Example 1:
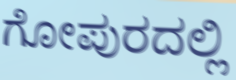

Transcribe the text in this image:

ಗೋಪುರದಲ್ಲಿ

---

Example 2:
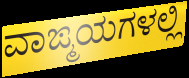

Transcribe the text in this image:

ವಾಙ್ಮಯಗಳಲ್ಲಿ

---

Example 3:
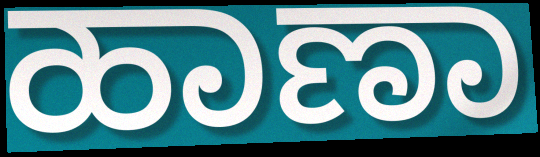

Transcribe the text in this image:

ಹಾಣಾ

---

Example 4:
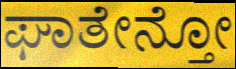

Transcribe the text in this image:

ಘಾತೇನ್ತೋ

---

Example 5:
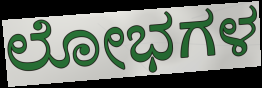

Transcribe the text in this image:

ಲೋಭಗಳ